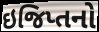
ઇજિપ્તનો